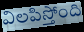
విలపిస్తోంది